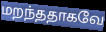
மறந்ததாகவே